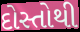
દોસ્તોથી